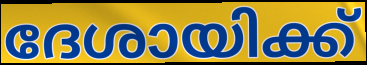
ദേശായിക്ക്